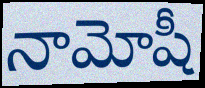
నామోషీ